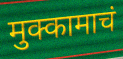
मुक्कामाचं